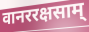
वानररक्षसाम्